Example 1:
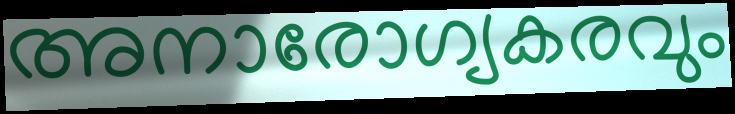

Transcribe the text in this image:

അനാരോഗ്യകരവും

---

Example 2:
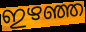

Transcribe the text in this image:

ഇഴഞ്ഞ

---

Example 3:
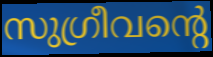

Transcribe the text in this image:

സുഗ്രീവന്റെ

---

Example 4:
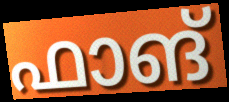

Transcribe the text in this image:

ഫാങ്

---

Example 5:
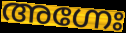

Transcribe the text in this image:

അഗ്നേഃ